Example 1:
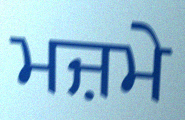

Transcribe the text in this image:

ਮਜ਼ਮੇ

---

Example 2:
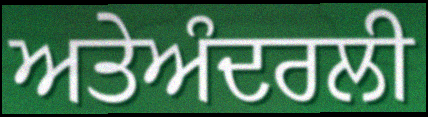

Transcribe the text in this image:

ਅਤੇਅੰਦਰਲੀ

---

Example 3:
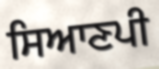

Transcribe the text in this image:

ਸਿਆਣਪੀ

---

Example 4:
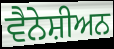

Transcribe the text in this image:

ਵੈਨੇਸ਼ੀਅਨ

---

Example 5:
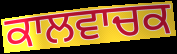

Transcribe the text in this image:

ਕਾਲਵਾਚਕ